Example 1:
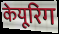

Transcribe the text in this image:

केयूरिग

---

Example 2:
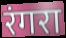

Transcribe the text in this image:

रंगरा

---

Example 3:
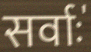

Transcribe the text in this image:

सर्वाः॑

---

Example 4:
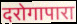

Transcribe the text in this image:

दरोगापारा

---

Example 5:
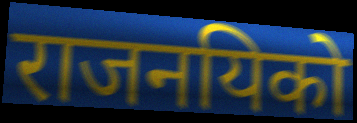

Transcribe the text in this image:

राजनयिको